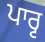
ਪਾਰ੍ਟ